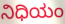
ನಿಧಿಯಂ